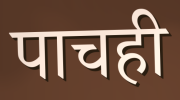
पाचही